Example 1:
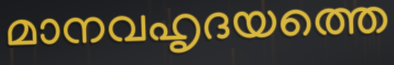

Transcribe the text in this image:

മാനവഹൃദയത്തെ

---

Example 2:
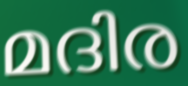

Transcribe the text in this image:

മദിര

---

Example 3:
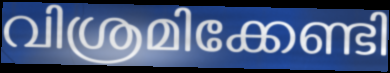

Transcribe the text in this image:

വിശ്രമിക്കേണ്ടി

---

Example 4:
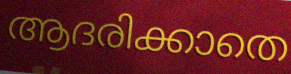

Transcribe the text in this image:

ആദരിക്കാതെ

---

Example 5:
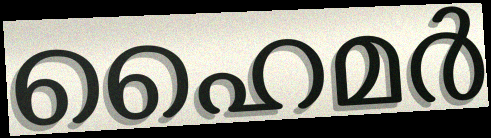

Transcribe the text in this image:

ഹൈമർ